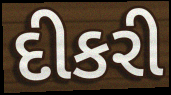
દીકરી